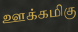
ஊக்கமிகு